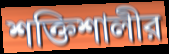
শক্তিশালীর